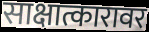
साक्षात्कारावर